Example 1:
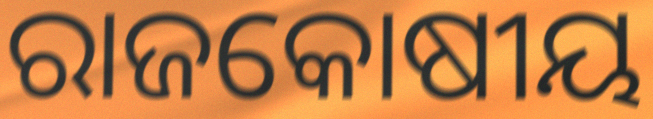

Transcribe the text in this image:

ରାଜକୋଷୀୟ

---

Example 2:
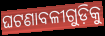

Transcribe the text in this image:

ଘଟଣାବଳୀଗୁଡ଼ିକୁ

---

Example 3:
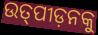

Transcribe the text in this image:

ଉତ୍‌ପୀଡ଼ନକୁ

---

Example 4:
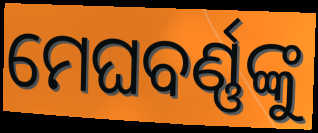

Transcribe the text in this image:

ମେଘବର୍ଣ୍ଣଙ୍କୁ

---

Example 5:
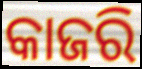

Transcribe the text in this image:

କାଜରି